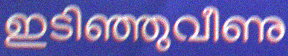
ഇടിഞ്ഞുവീണു